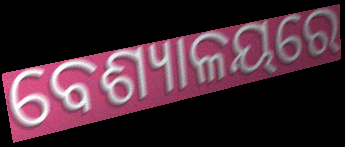
ବେଶ୍ୟାଳୟରେ